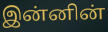
இன்னின்